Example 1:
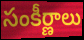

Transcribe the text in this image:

సంకీర్ణాలు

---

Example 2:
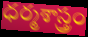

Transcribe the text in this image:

ధర్మశాస్త్రం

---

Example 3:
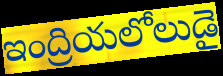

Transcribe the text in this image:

ఇంద్రియలోలుడై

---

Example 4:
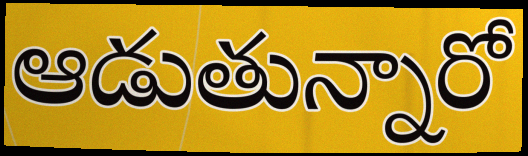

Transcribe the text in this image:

ఆడుతున్నారో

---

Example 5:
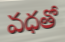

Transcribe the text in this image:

వధతో